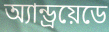
অ্যান্ড্রয়েডে